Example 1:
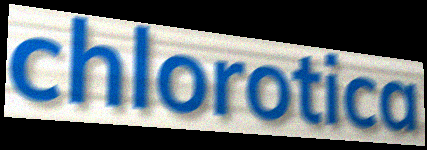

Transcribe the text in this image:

chlorotica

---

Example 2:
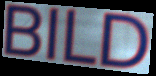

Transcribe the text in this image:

BILD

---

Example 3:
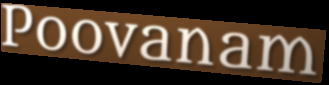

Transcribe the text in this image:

Poovanam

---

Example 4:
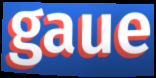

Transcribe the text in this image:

gaue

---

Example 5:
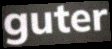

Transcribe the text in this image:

guter